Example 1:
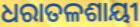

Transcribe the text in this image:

ଧରାତଳଶାୟୀ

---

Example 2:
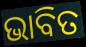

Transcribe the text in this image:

ଭାବିତ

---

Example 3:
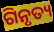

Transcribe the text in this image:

ଗିନୃତ୍ୟ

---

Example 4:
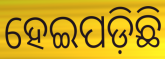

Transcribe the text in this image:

ହେଇପଡ଼ିଛି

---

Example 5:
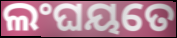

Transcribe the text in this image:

ଲଂଘୟତେ